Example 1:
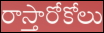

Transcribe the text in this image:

రాస్తారోకోలు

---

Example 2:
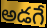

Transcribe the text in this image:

అడగే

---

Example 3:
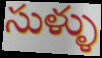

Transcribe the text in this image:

సుళ్ళు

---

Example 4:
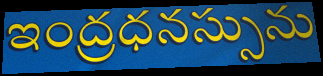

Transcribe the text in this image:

ఇంద్రధనస్సును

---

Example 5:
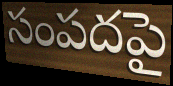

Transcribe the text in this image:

సంపదపై